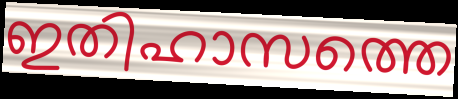
ഇതിഹാസത്തെ